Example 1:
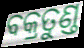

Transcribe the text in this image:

ବକ୍ରତୁଣ୍ଡ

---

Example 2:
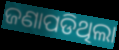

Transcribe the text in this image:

ଜଣାପଡିଥିଲା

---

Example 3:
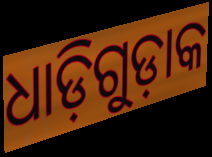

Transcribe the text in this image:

ଧାଡ଼ିଗୁଡ଼ାକ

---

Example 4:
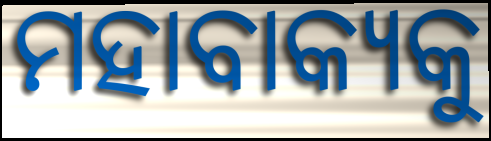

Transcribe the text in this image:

ମହାବାକ୍ୟକୁ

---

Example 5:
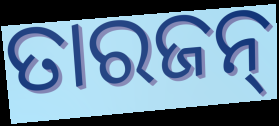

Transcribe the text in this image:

ତାରଜନ୍